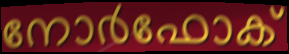
നോർഫോക്